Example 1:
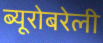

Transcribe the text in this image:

ब्यूरोबरेली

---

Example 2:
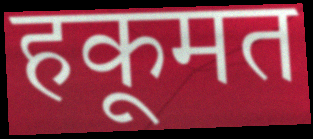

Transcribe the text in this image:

हकूमत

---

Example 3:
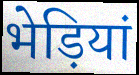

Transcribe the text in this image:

भेड़ियां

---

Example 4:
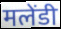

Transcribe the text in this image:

मलेंडी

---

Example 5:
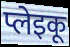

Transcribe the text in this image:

प्लेइकू